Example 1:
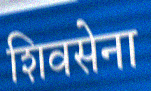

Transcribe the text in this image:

शिवसेना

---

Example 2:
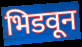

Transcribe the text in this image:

भिडवून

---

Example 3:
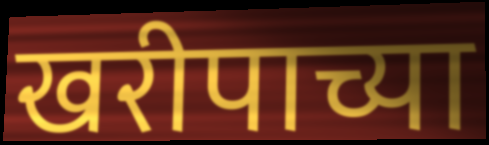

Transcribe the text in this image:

खरीपाच्या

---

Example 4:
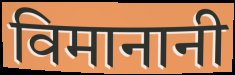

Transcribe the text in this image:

विमानानी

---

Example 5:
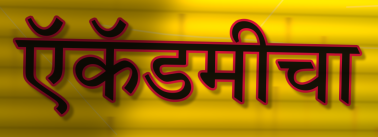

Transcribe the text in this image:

ऍकॅडमीचा